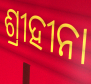
ଶ୍ରୀହୀନା